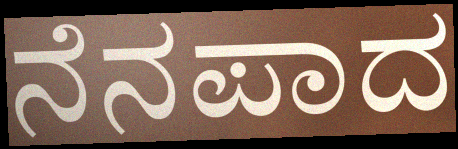
ನೆನಪಾದ